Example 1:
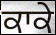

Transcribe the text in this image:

ਕਾਕੇ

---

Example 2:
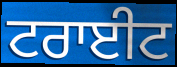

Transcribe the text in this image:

ਟਰਾਈਟ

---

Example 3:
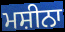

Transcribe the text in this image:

ਮਸ਼ੀਨਾ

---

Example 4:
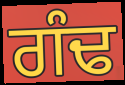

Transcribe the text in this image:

ਗੰਢ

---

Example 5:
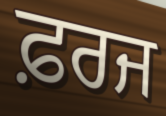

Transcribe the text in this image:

ਫ਼ਰਜ